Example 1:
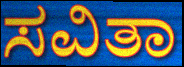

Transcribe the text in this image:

ಸವಿತಾ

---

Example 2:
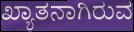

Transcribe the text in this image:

ಖ್ಯಾತನಾಗಿರುವ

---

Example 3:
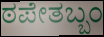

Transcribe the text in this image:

ಠಪೇತಬ್ಬಂ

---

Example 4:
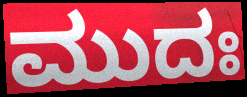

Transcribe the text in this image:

ಮುದಃ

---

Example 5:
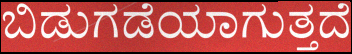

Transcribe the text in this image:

ಬಿಡುಗಡೆಯಾಗುತ್ತದೆ